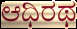
ಆಧಿರಥ